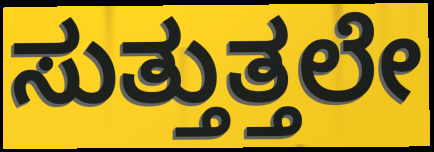
ಸುತ್ತುತ್ತಲೇ